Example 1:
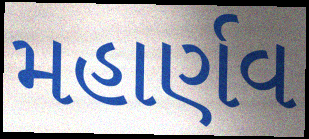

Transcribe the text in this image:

મહાર્ણવ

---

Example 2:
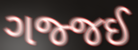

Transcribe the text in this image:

ગજ્જઈ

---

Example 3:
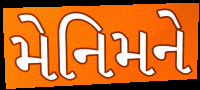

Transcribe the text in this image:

મેનિમને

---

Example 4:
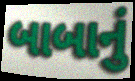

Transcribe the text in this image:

બાબાનું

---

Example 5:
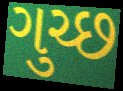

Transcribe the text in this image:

ગુચ્છ